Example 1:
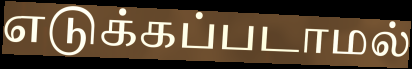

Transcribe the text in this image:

எடுக்கப்படாமல்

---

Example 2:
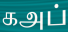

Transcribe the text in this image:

கஅப்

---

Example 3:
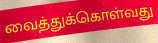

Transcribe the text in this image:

வைத்துக்கொள்வது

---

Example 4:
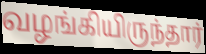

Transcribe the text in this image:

வழங்கியிருந்தார்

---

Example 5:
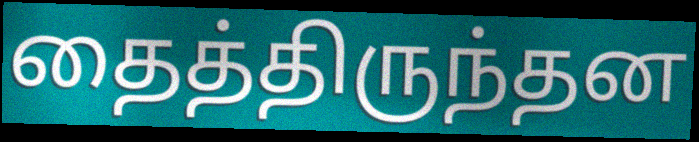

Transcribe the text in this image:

தைத்திருந்தன